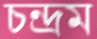
চন্দ্রম